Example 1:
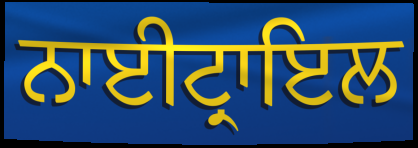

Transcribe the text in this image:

ਨਾਈਟ੍ਰਾਇਲ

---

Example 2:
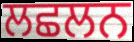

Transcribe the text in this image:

ਲਛਲਨ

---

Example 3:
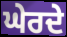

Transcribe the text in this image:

ਘੇਰਦੇ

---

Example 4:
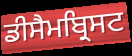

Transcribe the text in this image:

ਡੀਸੈਮਬ੍ਰਿਸਟ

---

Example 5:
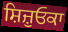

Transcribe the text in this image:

ਸ਼ਿਜ਼ੁਓਕਾ